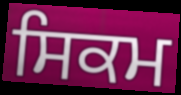
ਸਿਕਮ